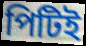
পিটিই